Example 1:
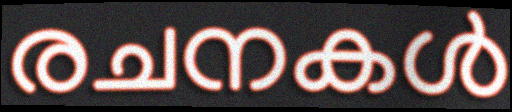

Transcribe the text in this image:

രചനകൾ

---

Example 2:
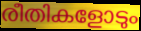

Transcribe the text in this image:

രീതികളോടും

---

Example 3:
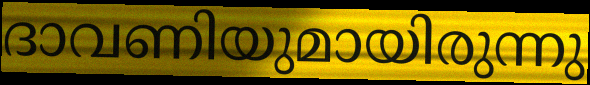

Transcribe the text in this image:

ദാവണിയുമായിരുന്നു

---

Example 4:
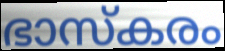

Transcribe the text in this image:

ഭാസ്കരം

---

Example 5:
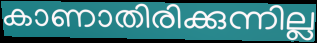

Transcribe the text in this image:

കാണാതിരിക്കുന്നില്ല